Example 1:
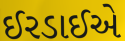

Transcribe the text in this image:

ઈરડાઈએ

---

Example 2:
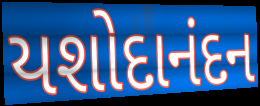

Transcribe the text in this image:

યશોદાનંદન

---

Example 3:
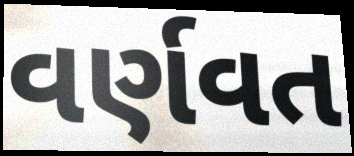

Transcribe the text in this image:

વર્ણવત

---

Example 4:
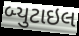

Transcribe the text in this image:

બ્યુટાઇલ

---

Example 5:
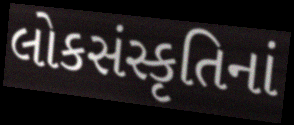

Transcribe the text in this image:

લોકસંસ્કૃતિનાં